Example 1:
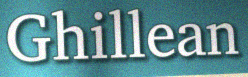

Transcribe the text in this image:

Ghillean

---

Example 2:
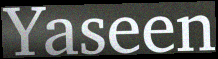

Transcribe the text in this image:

Yaseen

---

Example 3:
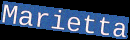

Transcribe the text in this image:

Marietta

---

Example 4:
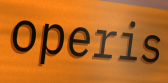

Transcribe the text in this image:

operis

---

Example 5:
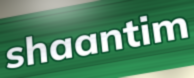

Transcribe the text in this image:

shaantim